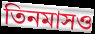
তিনমাসও